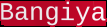
Bangiya